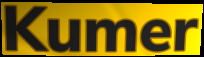
Kumer